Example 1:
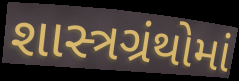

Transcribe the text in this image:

શાસ્ત્રગ્રંથોમાં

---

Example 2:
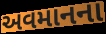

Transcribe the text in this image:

અવમાનના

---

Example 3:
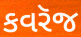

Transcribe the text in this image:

કવરૅજ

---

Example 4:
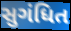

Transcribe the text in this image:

સુગંધિત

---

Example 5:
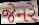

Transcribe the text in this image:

જેનરે